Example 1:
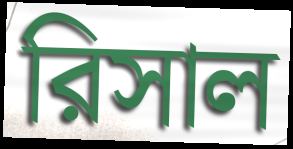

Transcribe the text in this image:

রিসাল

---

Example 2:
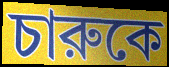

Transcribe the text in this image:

চারুকে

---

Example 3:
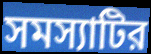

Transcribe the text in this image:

সমস্যাটির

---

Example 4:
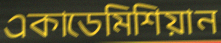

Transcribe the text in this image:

একাডেমিশিয়ান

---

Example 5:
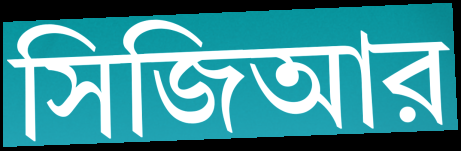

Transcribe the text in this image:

সিজিআর